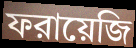
ফরায়েজি